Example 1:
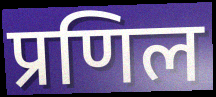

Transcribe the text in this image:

प्रणिल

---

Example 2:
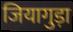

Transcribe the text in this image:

जियागुड़ा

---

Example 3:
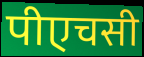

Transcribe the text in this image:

पीएचसी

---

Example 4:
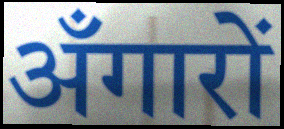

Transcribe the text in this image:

अँगारों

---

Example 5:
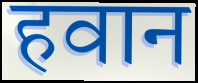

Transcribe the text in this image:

हवान